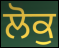
ਲੋਕੁ